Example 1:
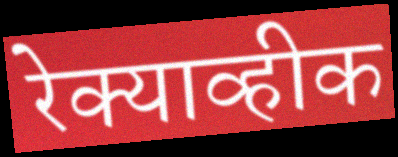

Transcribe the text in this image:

रेक्याव्हीक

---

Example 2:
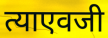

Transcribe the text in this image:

त्याएवजी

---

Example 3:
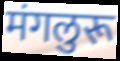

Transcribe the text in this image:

मंगलुरू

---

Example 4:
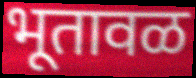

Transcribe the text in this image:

भूतावळ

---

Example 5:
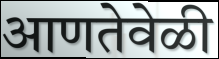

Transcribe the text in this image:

आणतेवेळी